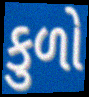
કુળો